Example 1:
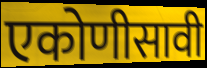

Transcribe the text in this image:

एकोणीसावी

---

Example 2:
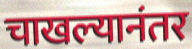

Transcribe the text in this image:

चाखल्यानंतर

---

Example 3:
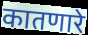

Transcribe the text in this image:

कातणारे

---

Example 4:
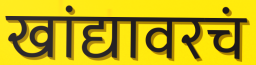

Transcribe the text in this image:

खांद्यावरचं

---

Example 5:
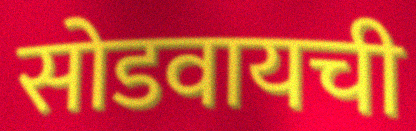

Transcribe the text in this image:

सोडवायची